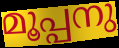
മൂപ്പനു